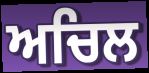
ਅਚਿਲ